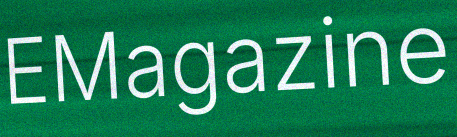
EMagazine